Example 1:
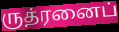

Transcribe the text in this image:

ருத்ரனைப்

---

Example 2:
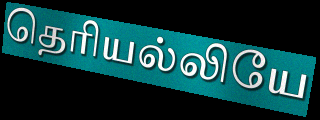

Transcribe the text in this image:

தெரியல்லியே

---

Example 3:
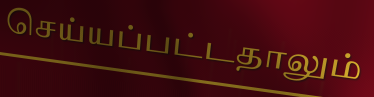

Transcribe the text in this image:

செய்யப்பட்டதாலும்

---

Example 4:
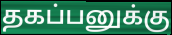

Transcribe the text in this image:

தகப்பனுக்கு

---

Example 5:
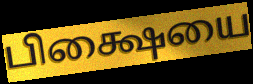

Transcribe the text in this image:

பிக்ஷையை